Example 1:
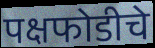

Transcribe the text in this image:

पक्षफोडीचे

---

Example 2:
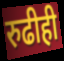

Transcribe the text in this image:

रुढीही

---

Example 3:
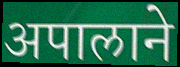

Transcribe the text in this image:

अपालाने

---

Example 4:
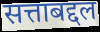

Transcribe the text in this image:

सत्ताबद्दल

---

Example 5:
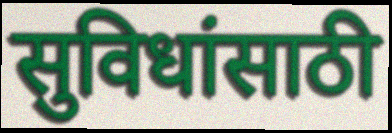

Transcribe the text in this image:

सुविधांसाठी